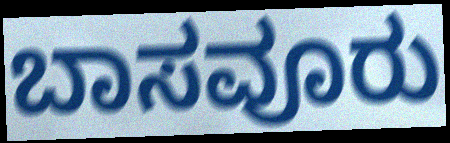
ಬಾಸವೂರು